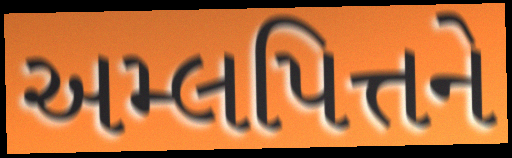
અમ્લપિત્તને